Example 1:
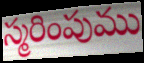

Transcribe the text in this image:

స్మరింపుము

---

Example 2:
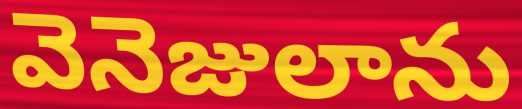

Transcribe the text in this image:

వెనెజులాను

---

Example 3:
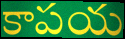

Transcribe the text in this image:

కాపయ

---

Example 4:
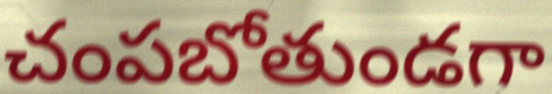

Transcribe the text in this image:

చంపబోతుండగా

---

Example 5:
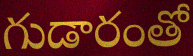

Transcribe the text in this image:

గుడారంతో